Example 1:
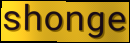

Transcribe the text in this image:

shonge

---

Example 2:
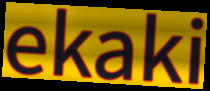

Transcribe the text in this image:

ekaki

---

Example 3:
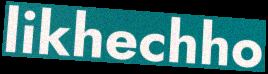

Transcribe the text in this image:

likhechho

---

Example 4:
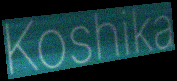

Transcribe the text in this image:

Koshika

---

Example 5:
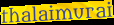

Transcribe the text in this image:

thalaimurai